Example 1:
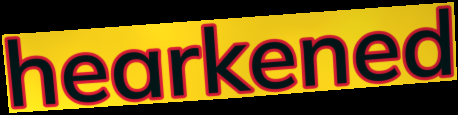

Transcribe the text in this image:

hearkened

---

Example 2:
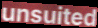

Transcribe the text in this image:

unsuited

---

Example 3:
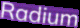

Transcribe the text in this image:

Radium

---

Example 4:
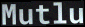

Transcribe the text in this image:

Mutlu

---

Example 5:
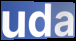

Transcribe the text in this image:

uda